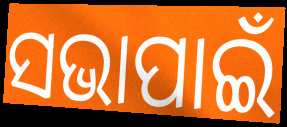
ସଭାପାଇଁ